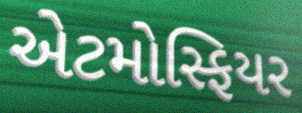
એટમોસ્ફિયર